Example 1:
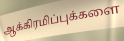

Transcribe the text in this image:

ஆக்கிரமிப்புக்களை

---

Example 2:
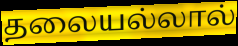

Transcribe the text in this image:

தலையல்லால்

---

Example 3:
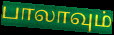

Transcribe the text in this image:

பாலாவும்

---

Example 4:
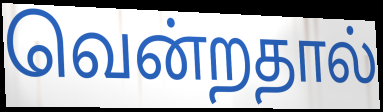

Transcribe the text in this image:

வென்றதால்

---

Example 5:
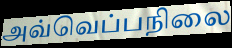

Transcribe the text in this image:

அவ்வெப்பநிலை